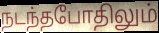
நடந்தபோதிலும்